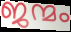
ജന്മം